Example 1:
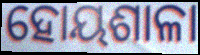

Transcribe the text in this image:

ହୋୟଶାଳା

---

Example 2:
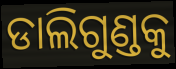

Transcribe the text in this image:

ଡାଲିଗୁଣ୍ଡକୁ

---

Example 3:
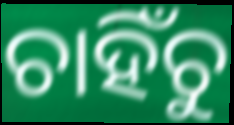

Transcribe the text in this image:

ଚାହିଁଚୁ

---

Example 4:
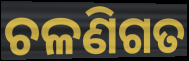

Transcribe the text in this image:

ଚଳଣିଗତ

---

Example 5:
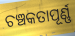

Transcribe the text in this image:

ଚଞ୍ଚକତାପୂର୍ଣ୍ଣ